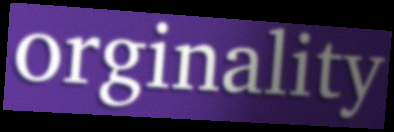
orginality